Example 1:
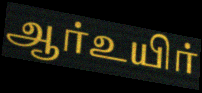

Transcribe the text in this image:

ஆர்உயிர்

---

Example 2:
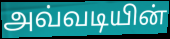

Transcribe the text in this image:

அவ்வடியின்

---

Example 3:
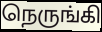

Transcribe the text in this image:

நெருங்கி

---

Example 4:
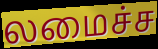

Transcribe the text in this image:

லமைச்ச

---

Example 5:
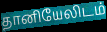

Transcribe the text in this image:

தானியேலிடம்